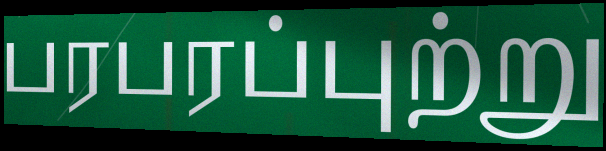
பரபரப்புற்று